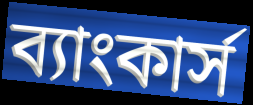
ব্যাংকার্স